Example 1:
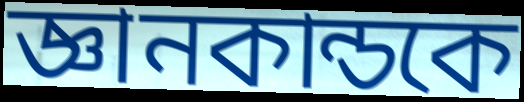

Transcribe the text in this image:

জ্ঞানকান্ডকে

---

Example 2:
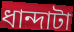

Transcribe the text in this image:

ধান্দাটা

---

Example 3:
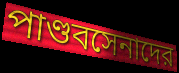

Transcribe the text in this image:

পাণ্ডবসেনাদের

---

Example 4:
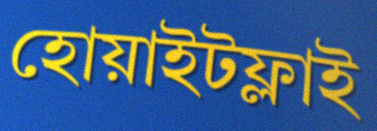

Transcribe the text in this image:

হোয়াইটফ্লাই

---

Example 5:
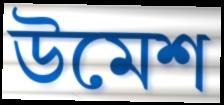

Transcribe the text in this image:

উমেশ